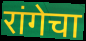
रांगेचा